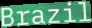
Brazil